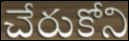
చేరుకోని